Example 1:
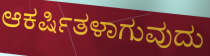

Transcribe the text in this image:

ಆಕರ್ಷಿತಳಾಗುವುದು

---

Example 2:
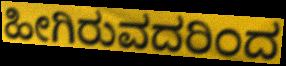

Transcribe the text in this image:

ಹೀಗಿರುವದರಿಂದ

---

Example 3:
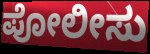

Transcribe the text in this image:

ಪೋಲೀಸು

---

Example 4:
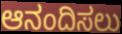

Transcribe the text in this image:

ಆನಂದಿಸಲು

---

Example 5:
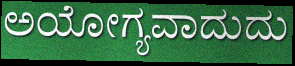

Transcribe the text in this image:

ಅಯೋಗ್ಯವಾದುದು